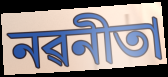
নৱনীতা